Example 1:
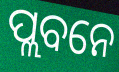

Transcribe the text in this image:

ପ୍ଲବନେ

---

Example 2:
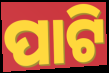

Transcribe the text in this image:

ପାଟି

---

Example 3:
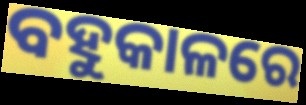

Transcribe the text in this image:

ବହୁକାଳରେ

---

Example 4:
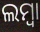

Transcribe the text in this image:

ଲମ୍ୱା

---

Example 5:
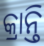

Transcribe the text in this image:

କ୍ରାନ୍ତି